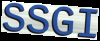
SSGI